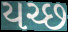
યચ્છ